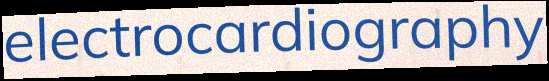
electrocardiography